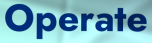
Operate